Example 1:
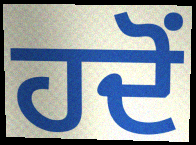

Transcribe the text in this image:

ਹਦੋਂ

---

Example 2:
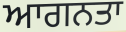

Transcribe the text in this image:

ਆਗਨਤਾ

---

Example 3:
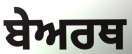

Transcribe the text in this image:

ਬੇਅਰਥ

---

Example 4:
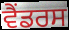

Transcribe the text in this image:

ਵੈਂਡਰਸ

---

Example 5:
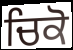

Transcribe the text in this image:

ਚਿਕੋ